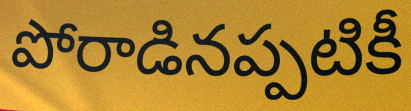
పోరాడినప్పటికీ